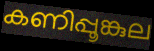
കണിപ്പൂങ്കുല